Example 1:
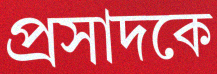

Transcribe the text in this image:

প্রসাদকে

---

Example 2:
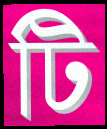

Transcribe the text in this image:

টি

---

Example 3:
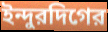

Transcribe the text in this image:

ইন্দুরদিগের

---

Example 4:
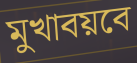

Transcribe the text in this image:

মুখাবয়বে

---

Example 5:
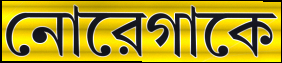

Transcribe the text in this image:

নোরেগাকে